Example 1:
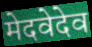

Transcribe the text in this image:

मेदवेदेव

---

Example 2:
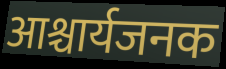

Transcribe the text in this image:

आश्चार्यजनक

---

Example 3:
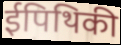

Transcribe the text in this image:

ईपिथिकी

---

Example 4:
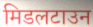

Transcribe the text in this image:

मिडलटाउन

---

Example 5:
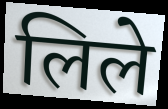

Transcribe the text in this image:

लिले